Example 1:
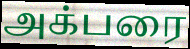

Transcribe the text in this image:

அக்பரை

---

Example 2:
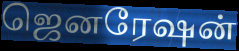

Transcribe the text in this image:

ஜெனரேஷன்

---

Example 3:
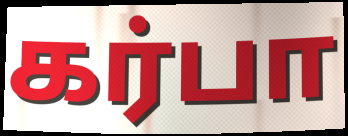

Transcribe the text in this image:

கர்பா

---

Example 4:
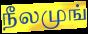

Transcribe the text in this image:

நீலமுங்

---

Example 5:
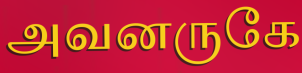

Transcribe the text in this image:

அவனருகே